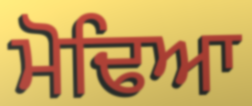
ਮੋਢਿਆ